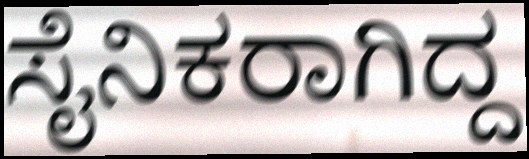
ಸೈನಿಕರಾಗಿದ್ದ